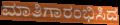
ಮಾತಿಗಾರಂಭಿಸಿದ